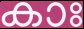
കാഃ